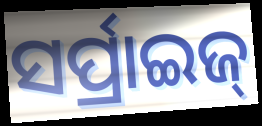
ସର୍ପ୍ରାଇଜ୍